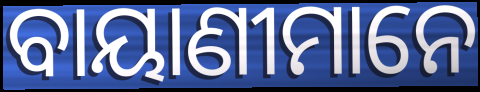
ବାୟାଣୀମାନେ